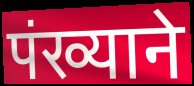
पंख्याने